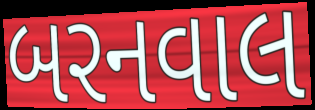
બરનવાલ